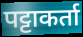
पट्टाकर्ता